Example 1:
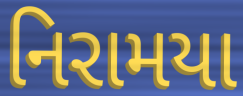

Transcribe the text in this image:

નિરામયા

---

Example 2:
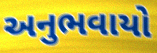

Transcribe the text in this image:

અનુભવાયો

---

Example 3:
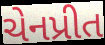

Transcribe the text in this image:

ચેનપ્રીત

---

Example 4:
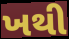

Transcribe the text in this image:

ખથી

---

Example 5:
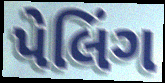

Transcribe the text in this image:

પેલિંગ